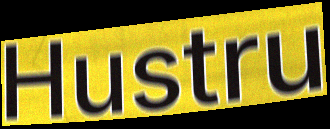
Hustru